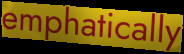
emphatically